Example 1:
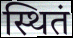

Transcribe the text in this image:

स्थितं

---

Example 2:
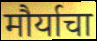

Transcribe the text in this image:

मौर्याचा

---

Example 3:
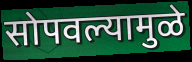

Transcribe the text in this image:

सोपवल्यामुळे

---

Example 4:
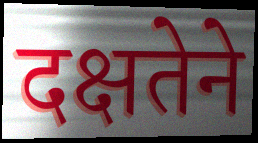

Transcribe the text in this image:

दक्षतेने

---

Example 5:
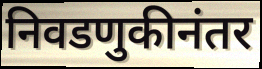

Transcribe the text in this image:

निवडणुकीनंतर